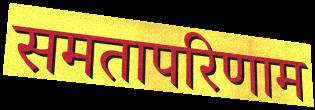
समतापरिणाम